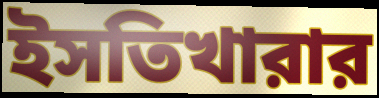
ইসতিখারার